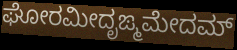
ಘೋರಮೀದೃಙ್ಮಮೇದಮ್